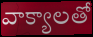
వాక్యాలతో